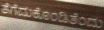
ತೆಗೆದುಕೊಂಡಿತೆಂದು